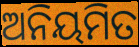
ଅନିୟମିତ